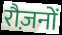
रौज़नों